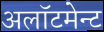
अलॉटमेन्ट